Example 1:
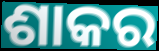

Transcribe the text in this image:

ଶାକର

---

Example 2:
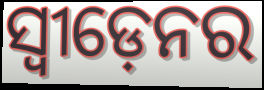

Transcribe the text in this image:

ସ୍ଵୀଡ଼େନର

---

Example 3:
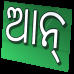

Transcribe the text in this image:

ଆନ୍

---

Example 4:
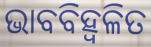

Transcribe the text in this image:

ଭାବବିହ୍ବଳିତ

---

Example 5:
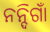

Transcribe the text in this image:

ନନ୍ଦିଗାଁ